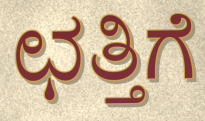
ಛತ್ತಿಗೆ